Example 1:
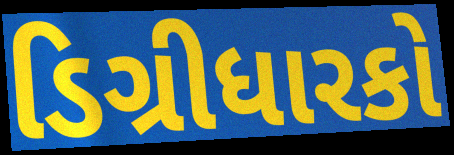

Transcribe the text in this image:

ડિગ્રીધારકો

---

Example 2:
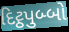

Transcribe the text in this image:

દિટ્ઠપુબ્બો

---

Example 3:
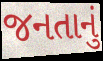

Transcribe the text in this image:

જનતાનું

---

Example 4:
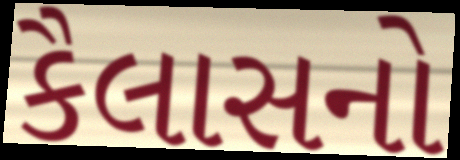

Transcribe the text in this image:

કૈલાસનો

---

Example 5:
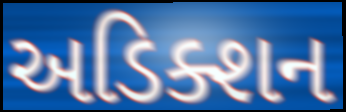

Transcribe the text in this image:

અડિક્શન